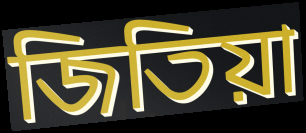
জিতিয়া